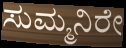
ಸುಮ್ಮನಿರೇ